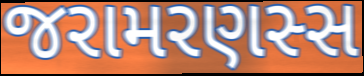
જરામરણસ્સ